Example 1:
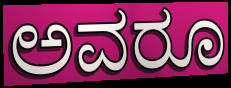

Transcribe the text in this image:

ಅವರೂ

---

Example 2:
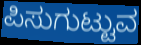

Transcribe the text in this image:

ಪಿಸುಗುಟ್ಟುವ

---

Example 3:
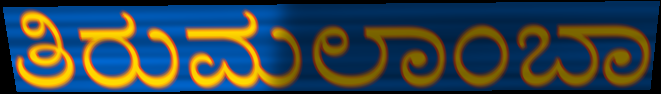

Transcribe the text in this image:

ತಿರುಮಲಾಂಬಾ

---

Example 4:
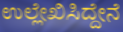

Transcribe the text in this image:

ಉಲ್ಲೇಖಿಸಿದ್ದೇನೆ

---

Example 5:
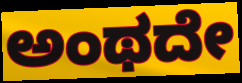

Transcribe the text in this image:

ಅಂಥದೇ